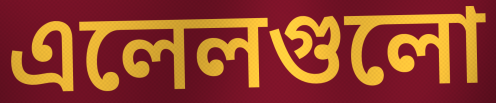
এলেলগুলো